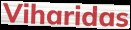
Viharidas